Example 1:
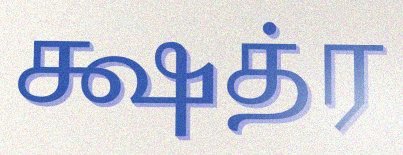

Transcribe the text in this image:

க்ஷத்ர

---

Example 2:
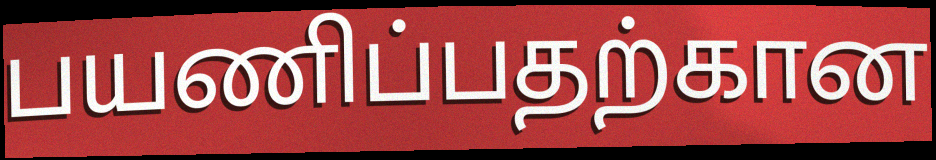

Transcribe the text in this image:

பயணிப்பதற்கான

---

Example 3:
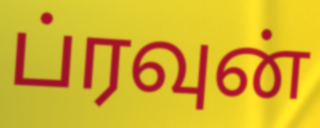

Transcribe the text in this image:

ப்ரவுன்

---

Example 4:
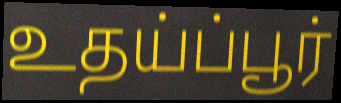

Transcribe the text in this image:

உதய்ப்பூர்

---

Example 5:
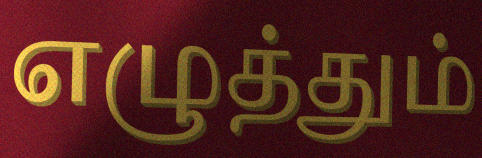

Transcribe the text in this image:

எழுத்தும்